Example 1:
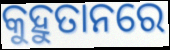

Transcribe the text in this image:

କୁହୁତାନରେ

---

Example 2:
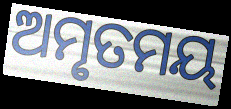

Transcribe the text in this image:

ଅମୃତମୟ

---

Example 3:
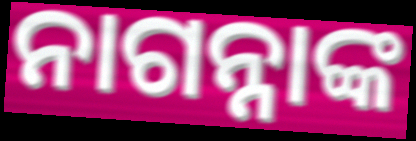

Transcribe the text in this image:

ନାଗନ୍ନାଙ୍କ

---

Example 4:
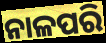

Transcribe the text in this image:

ନାଳପରି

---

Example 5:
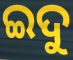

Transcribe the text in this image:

ଇଦୁ